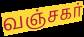
வஞ்சகர்